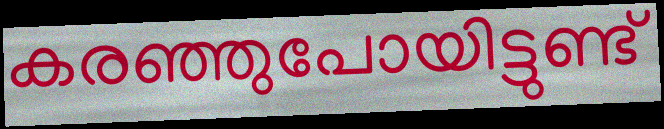
കരഞ്ഞുപോയിട്ടുണ്ട്